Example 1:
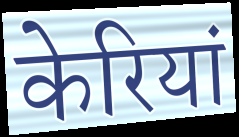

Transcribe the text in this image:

केरियां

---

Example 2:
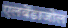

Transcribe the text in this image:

एलबेंडाजोल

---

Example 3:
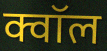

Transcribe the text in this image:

क्वॉल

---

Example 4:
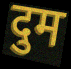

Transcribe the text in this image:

दुम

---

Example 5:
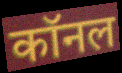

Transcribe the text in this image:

कॉनल